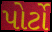
પોર્ટો